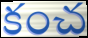
కంచ